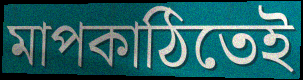
মাপকাঠিতেই